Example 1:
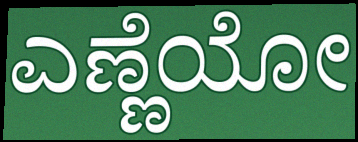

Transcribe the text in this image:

ಎಣ್ಣೆಯೋ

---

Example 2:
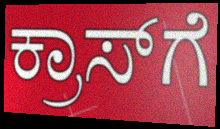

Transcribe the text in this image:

ಕ್ರಾಸ್‌ಗೆ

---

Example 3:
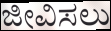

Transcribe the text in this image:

ಜೀವಿಸಲು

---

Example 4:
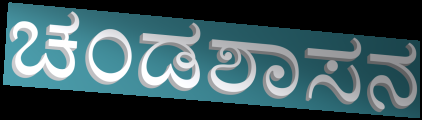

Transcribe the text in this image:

ಚಂಡಶಾಸನ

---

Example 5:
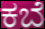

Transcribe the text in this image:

ಕಬೆ